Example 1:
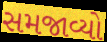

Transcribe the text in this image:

સમજાવ્યો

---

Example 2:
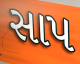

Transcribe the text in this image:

સાપ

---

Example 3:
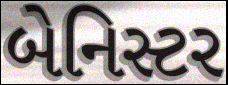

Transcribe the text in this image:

બેનિસ્ટર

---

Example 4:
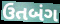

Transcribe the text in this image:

ઉતબંગ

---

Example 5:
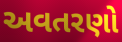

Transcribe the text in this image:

અવતરણો